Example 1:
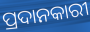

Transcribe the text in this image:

ପ୍ରଦାନକାରୀ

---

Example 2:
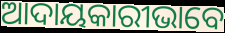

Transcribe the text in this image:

ଆଦାୟକାରୀଭାବେ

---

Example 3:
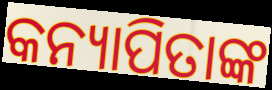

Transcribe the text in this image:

କନ୍ୟାପିତାଙ୍କ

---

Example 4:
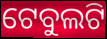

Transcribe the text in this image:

ଟେବୁଲଟି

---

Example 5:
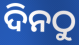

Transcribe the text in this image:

ଦିନଠୁ